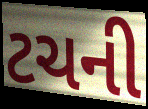
ટચની